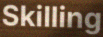
Skilling